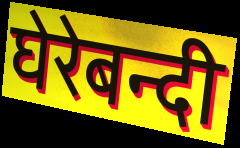
घेरेबन्दी